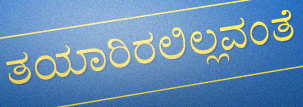
ತಯಾರಿರಲಿಲ್ಲವಂತೆ